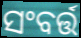
ସଂବର୍ତ୍ତ